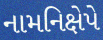
નામનિક્ષેપે